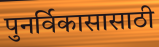
पुनर्विकासासाठी